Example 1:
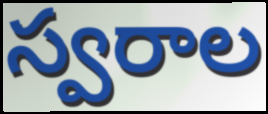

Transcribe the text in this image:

స్వరాల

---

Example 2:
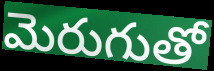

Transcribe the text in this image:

మెరుగుతో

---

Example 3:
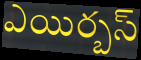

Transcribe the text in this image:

ఎయిర్బస్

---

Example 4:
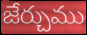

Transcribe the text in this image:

జేర్చుము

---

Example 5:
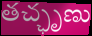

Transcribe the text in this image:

తచ్ఛృణు